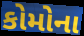
કોમોના